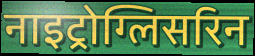
नाइट्रोग्लिसरिन